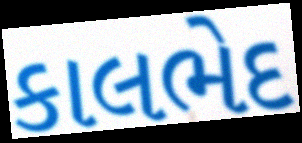
કાલભેદ